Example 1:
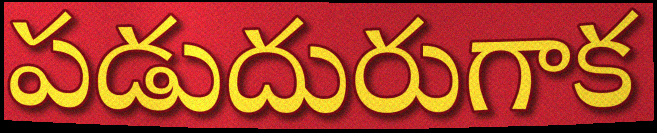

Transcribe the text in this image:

పడుదురుగాక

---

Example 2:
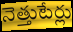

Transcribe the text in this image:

నెత్తుటేర్లు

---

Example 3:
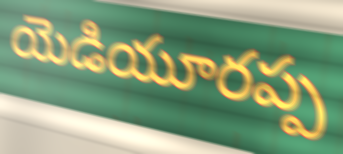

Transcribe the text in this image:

యెడియూరప్ప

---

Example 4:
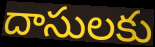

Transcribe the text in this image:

దాసులకు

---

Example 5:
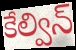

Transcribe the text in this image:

కేల్విన్